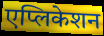
एप्लिकेशन